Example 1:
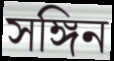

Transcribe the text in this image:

সঙ্গিন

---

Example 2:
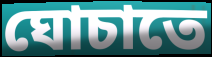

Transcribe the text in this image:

ঘোচাতে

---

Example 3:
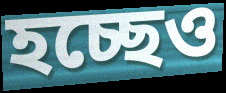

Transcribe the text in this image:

হচ্ছেও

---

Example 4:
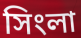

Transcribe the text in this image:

সিংলা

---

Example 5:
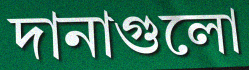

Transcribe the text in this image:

দানাগুলো